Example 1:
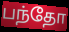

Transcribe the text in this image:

பந்தோ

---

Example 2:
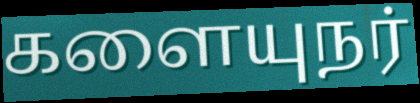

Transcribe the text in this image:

களையுநர்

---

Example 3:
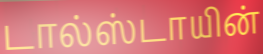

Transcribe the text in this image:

டால்ஸ்டாயின்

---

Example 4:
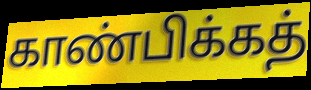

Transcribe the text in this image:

காண்பிக்கத்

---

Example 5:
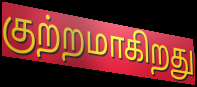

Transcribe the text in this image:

குற்றமாகிறது